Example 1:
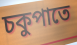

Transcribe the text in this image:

চকুপাতে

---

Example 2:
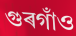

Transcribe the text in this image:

গুৰগাঁও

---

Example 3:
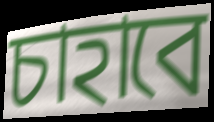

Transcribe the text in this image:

চাহাবে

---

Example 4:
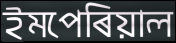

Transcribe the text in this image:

ইমপেৰিয়াল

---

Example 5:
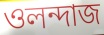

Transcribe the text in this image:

ওলন্দাজ